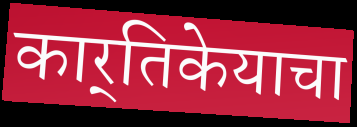
कार्तिकेयाचा